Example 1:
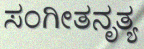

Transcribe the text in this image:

ಸಂಗೀತನೃತ್ಯ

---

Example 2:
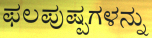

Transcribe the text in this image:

ಫಲಪುಷ್ಪಗಳನ್ನು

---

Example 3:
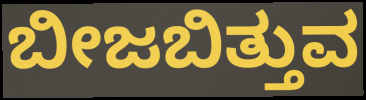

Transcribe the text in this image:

ಬೀಜಬಿತ್ತುವ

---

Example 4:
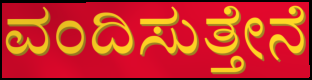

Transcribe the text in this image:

ವಂದಿಸುತ್ತೇನೆ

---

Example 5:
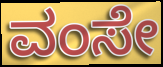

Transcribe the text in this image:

ವಂಸೇ